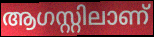
ആഗസ്റ്റിലാണ്